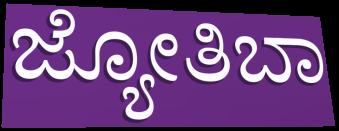
ಜ್ಯೋತಿಬಾ